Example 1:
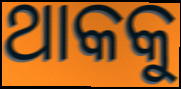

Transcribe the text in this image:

ଥାକକୁ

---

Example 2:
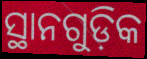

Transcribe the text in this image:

ସ୍ଥାନଗୁଡ଼ିକ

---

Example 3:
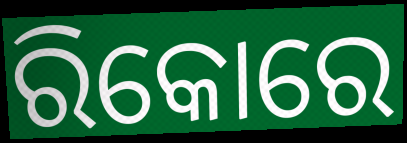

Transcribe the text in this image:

ରିକୋରେ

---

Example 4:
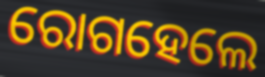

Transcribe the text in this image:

ରୋଗହେଲେ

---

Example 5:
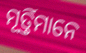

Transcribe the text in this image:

ମୂର୍ତ୍ତିମାନେ